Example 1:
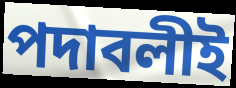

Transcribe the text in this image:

পদাবলীই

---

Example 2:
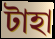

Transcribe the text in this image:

টাহা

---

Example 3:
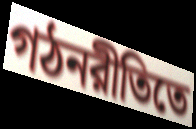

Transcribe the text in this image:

গঠনরীতিতে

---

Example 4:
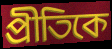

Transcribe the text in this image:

প্রীতিকে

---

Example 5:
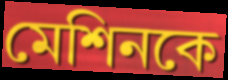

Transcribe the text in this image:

মেশিনকে